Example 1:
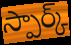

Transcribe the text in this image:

స్పార్క్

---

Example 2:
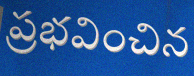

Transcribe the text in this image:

ప్రభవించిన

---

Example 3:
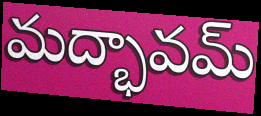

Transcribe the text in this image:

మద్భావమ్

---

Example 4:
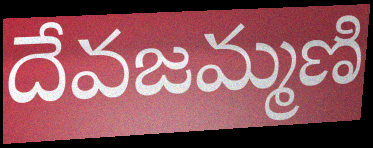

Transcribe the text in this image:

దేవజమ్మణి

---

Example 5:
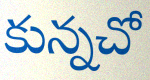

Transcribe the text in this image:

కున్నచో